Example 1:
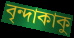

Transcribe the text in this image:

বৃন্দাকাকু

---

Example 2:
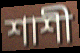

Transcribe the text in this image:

শাশী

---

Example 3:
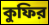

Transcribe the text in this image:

কুফির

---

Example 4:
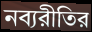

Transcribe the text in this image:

নব্যরীতির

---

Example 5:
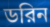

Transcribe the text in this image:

ডরিন